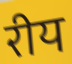
रीय